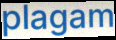
plagam